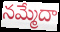
నమ్మేదా